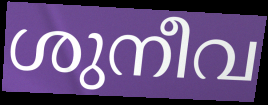
ശുനീവ